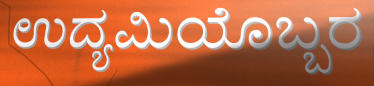
ಉದ್ಯಮಿಯೊಬ್ಬರ